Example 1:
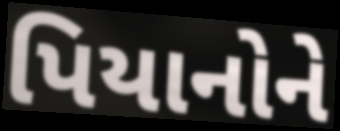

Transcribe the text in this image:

પિયાનોને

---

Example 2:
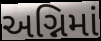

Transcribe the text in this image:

અગ્નિમાં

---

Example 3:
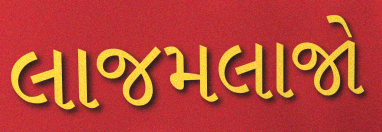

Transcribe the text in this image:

લાજમલાજો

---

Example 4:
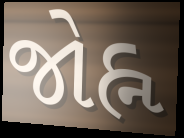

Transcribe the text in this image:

જોહ્ન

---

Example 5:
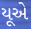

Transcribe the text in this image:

યૂએ